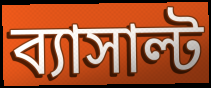
ব্যাসাল্ট